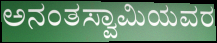
ಅನಂತಸ್ವಾಮಿಯವರ